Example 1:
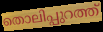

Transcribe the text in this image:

തൊലിപ്പുറത്ത്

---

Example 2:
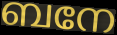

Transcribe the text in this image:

ബനേ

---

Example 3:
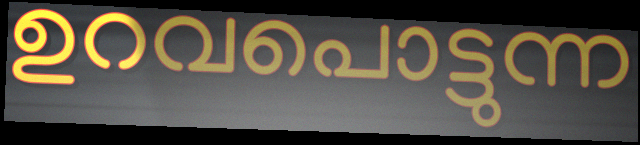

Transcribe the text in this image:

ഉറവപൊട്ടുന്ന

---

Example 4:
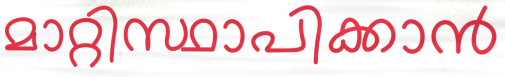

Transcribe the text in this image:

മാറ്റിസ്ഥാപിക്കാൻ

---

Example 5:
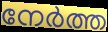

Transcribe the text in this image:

നേർത്ത